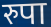
रुपा